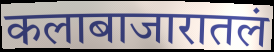
कलाबाजारातलं